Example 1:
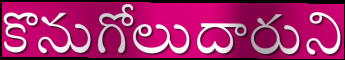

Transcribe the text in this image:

కొనుగోలుదారుని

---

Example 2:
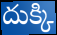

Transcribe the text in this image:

దుక్కి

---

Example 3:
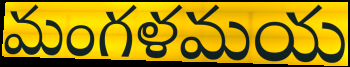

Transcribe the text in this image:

మంగళమయ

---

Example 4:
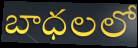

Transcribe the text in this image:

బాధలలో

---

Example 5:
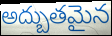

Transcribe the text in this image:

అద్బుతమైన